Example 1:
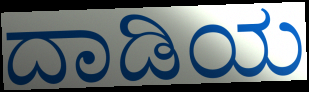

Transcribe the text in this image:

ದಾಡಿಯ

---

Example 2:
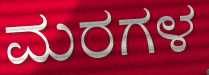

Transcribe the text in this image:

ಮರಗಳ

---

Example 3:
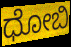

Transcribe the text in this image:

ಧೋಬಿ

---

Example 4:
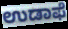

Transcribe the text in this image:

ಉಡಾಫೆ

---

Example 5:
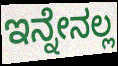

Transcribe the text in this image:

ಇನ್ನೇನಲ್ಲ